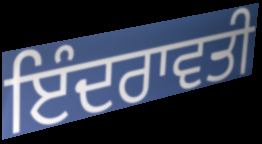
ਇੰਦਰਾਵਤੀ